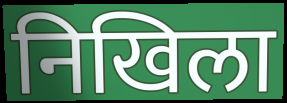
निखिला